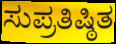
ಸುಪ್ರತಿಷ್ಠಿತ